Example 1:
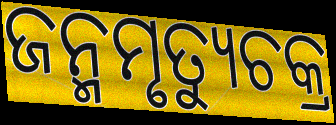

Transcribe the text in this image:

ଜନ୍ମମୃତ୍ୟୁଚକ୍ର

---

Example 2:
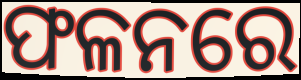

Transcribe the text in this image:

ଫଳନରେ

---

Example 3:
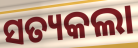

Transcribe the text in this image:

ସତ୍ୟକଲା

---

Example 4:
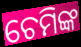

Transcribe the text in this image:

ଚେମିଙ୍କ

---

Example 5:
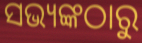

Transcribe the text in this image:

ସଭ୍ୟଙ୍କଠାରୁ